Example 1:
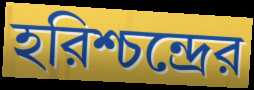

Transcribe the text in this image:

হরিশ্চন্দ্রের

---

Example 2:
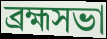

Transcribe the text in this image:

ব্রহ্মসভা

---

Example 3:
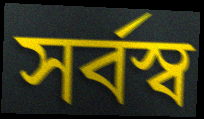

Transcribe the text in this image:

সর্বস্ব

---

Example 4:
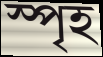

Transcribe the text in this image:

স্পৃহ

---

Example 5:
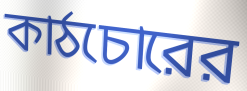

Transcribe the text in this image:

কাঠচোরের